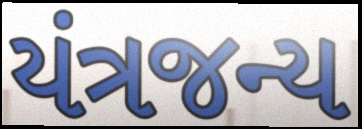
યંત્રજન્ય